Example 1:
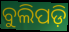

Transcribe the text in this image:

ବୁଲିପଡ଼ି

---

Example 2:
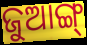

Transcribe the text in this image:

ଜୁଆଙ୍ଗ୍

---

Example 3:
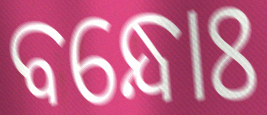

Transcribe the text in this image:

ବନ୍ଧୋଃ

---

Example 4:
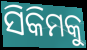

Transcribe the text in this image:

ସିକିମକୁ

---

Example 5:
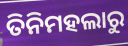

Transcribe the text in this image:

ତିନିମହଲାରୁ